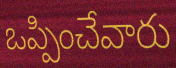
ఒప్పించేవారు